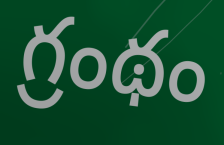
గ్రంథం